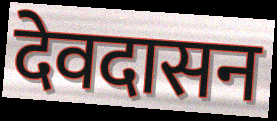
देवदासन